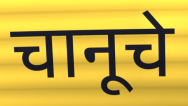
चानूचे